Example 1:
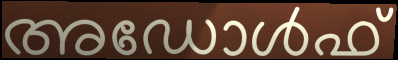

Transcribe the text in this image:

അഡോൾഫ്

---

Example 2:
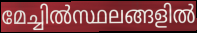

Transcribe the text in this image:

മേച്ചിൽസ്ഥലങ്ങളിൽ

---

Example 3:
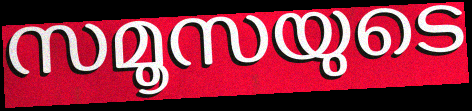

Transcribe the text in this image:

സമൂസയുടെ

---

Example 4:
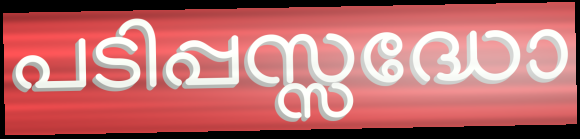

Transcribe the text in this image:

പടിപ്പസ്സദ്ധോ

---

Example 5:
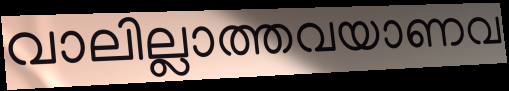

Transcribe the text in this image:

വാലില്ലാത്തവയാണവ